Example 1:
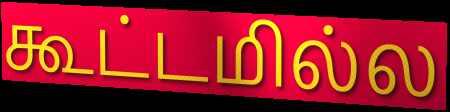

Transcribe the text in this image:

கூட்டமில்ல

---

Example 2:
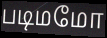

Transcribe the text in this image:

படிமமோ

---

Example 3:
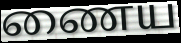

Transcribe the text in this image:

ணைய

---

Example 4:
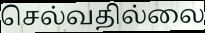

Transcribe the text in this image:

செல்வதில்லை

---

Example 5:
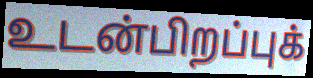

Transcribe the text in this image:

உடன்பிறப்புக்